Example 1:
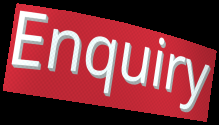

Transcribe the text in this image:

Enquiry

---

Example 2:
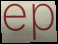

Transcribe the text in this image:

ep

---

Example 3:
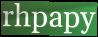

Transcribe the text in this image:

rhpapy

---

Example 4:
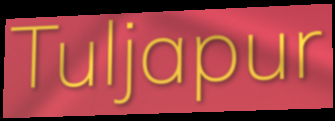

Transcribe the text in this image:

Tuljapur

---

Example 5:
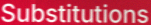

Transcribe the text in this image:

Substitutions